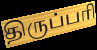
திருப்பரி